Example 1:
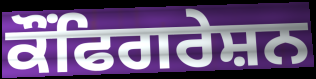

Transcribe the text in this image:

ਕੌਂਫਿਗਰੇਸ਼ਨ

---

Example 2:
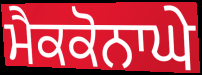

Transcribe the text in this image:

ਮੈਕਕੋਨਾਘੇ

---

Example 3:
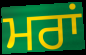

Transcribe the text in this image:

ਮਰਾਂ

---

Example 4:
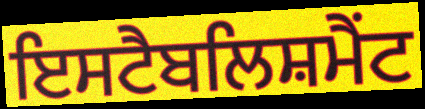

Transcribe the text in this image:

ਇਸਟੈਬਲਿਸ਼ਮੈਂਟ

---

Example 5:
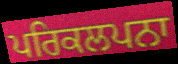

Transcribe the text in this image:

ਪਰਿਕਲਪਨਾ